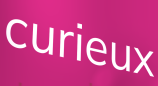
curieux